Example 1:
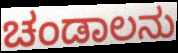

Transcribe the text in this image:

ಚಂಡಾಲನು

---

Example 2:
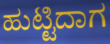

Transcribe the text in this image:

ಹುಟ್ಟಿದಾಗ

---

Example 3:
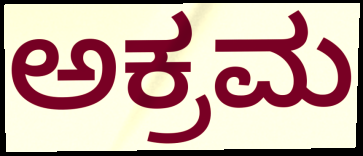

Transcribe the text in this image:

ಅಕ್ರಮ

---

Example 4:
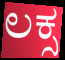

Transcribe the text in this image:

ಲಕ್ಸ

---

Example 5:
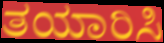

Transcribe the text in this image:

ತಯಾರಿಸಿ